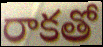
రాకతో